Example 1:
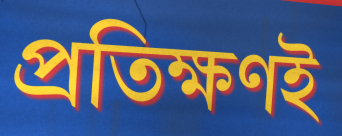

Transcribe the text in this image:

প্রতিক্ষণই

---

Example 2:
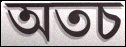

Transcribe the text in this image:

অতচ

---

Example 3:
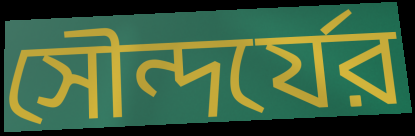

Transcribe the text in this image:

সৌন্দর্যের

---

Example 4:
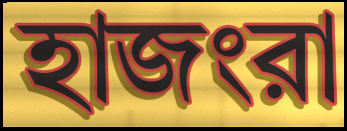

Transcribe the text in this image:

হাজংরা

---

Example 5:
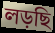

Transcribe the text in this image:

লড়ছি